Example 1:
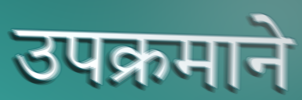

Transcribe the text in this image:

उपक्रमाने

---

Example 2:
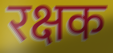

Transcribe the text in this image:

रक्षक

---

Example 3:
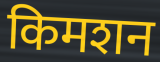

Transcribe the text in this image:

किमशन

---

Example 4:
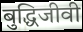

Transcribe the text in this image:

बुद्धिजीवी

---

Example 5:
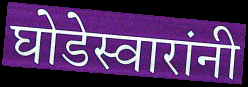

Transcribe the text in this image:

घोडेस्वारांनी